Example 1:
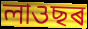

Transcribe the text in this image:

লাওছৰ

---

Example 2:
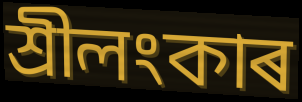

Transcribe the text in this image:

শ্ৰীলংকাৰ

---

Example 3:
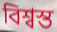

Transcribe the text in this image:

বিশ্বস্ত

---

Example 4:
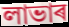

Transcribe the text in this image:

লাভাৰ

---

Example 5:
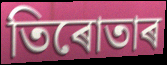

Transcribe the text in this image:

তিৰোতাৰ